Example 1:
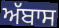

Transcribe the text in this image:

ਅੱਬਾਸ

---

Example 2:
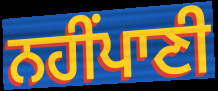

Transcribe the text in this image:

ਨਹੀਂਪਾਣੀ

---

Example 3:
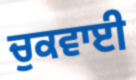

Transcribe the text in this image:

ਚੁਕਵਾਈ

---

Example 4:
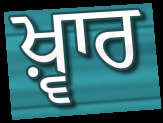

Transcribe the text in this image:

ਖ਼੍ਵਾਰ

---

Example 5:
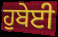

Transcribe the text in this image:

ਹੁਬੇਈ